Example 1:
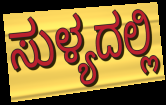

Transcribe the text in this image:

ಸುಳ್ಯದಲ್ಲಿ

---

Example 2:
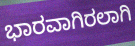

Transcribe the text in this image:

ಭಾರವಾಗಿರಲಾಗಿ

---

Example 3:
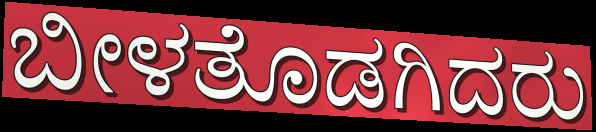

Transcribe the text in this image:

ಬೀಳತೊಡಗಿದರು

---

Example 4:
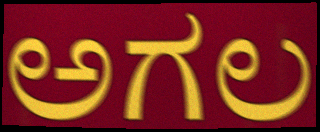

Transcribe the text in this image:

ಅಗಲ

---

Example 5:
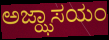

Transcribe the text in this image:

ಅಜ್ಝಾಸಯಂ